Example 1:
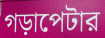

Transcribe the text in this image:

গড়াপেটার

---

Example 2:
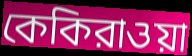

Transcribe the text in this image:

কেকিরাওয়া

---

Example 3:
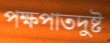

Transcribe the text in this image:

পক্ষপাতদুষ্ট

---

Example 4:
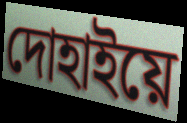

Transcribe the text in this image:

দোহাইয়ে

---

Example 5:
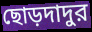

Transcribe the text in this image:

ছোড়দাদুর